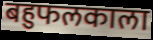
बहुफलकाला